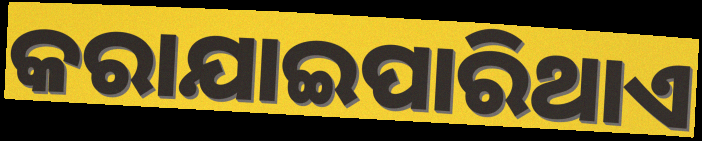
କରାଯାଇପାରିଥାଏ